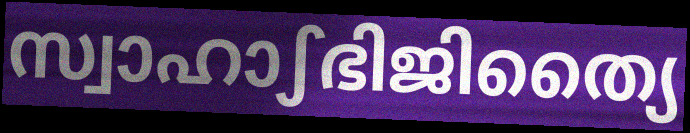
സ്വാഹാഽഭിജിത്യൈ